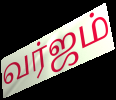
வர்ஜம்